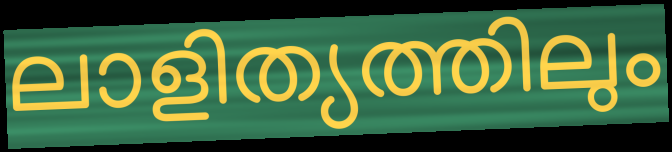
ലാളിത്യത്തിലും